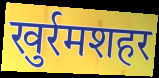
खुर्रमशहर